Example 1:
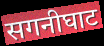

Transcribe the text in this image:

सगनीघाट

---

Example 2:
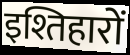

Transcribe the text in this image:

इश्तिहारों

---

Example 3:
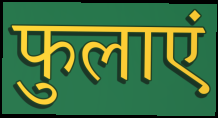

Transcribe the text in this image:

फुलाएं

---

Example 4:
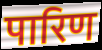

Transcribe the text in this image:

पारिण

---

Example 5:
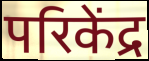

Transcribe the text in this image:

परिकेंद्र